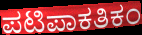
ಪಟಿಪಾಕತಿಕಂ